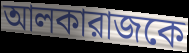
আলকারাজকে